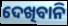
ଦେଖିବାନି